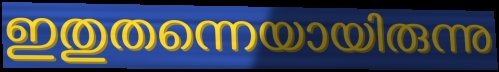
ഇതുതന്നെയായിരുന്നു